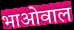
भाओवाल